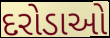
દરોડાઓ